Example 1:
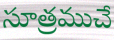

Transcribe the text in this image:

సూత్రముచే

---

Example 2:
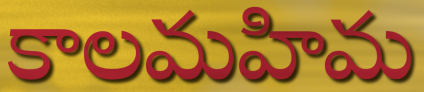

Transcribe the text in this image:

కాలమహిమ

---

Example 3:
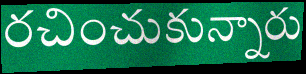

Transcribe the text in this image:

రచించుకున్నారు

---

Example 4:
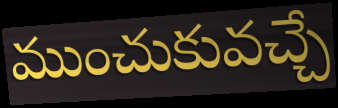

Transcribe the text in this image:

ముంచుకువచ్చే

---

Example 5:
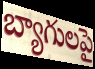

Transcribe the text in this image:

బ్యాగులపై